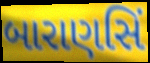
બારાણસિં